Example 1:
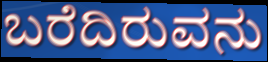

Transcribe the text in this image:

ಬರೆದಿರುವನು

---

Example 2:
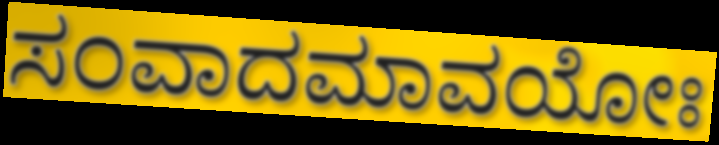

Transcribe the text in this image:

ಸಂವಾದಮಾವಯೋಃ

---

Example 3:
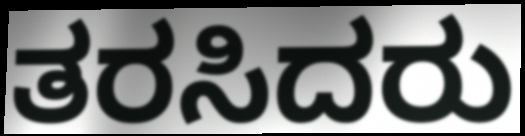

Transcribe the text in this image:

ತರಸಿದರು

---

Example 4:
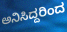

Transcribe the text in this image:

ಅನಿಸಿದ್ದರಿಂದ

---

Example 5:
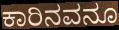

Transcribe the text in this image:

ಕಾರಿನವನೂ